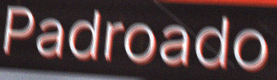
Padroado